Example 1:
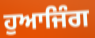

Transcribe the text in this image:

ਹੁਆਜਿੰਗ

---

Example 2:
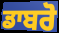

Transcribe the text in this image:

ਡਾਬਰੋ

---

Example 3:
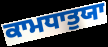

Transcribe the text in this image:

ਕਾਮਧਾਤੁਯਾ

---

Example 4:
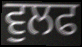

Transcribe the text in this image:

ਵੁਲਫ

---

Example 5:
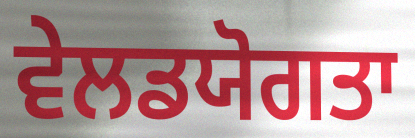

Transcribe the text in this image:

ਵੇਲਡਯੋਗਤਾ